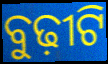
ବୁଢ଼ୀଟି